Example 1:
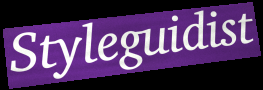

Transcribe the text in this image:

Styleguidist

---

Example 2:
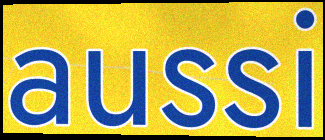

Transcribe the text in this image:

aussi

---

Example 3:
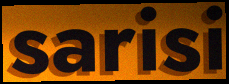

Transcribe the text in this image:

sarisi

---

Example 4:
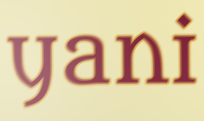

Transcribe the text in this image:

yani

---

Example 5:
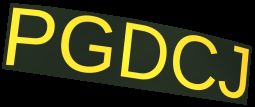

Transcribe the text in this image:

PGDCJ